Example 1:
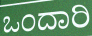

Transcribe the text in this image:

ಒಂದಾರಿ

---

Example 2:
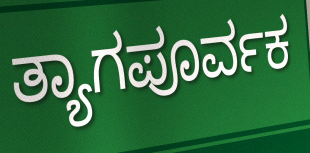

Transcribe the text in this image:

ತ್ಯಾಗಪೂರ್ವಕ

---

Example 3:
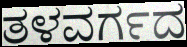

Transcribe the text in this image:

ತಳವರ್ಗದ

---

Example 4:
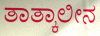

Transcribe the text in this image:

ತಾತ್ಕಾಲೀನ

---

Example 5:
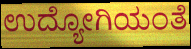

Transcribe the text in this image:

ಉದ್ಯೋಗಿಯಂತೆ